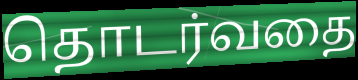
தொடர்வதை